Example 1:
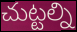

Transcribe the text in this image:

చుట్టల్ని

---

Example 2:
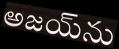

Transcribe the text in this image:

అజయ్‌ను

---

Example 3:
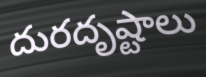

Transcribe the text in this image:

దురదృష్టాలు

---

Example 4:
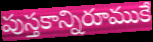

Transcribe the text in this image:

పుస్తకాన్నిరూముకే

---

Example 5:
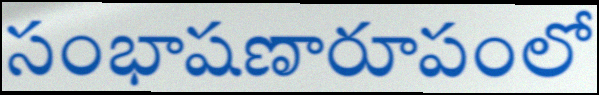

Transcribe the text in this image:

సంభాషణారూపంలో